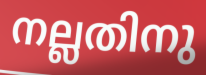
നല്ലതിനു